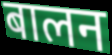
बालन